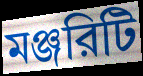
মঞ্জরিটি